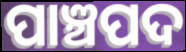
ପାଞ୍ଚପଦ